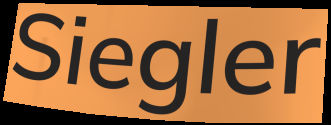
Siegler